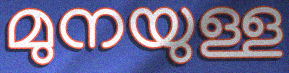
മുനയുള്ള